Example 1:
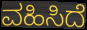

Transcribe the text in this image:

ವಹಿಸಿದೆ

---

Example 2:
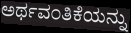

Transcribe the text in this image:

ಅರ್ಥವಂತಿಕೆಯನ್ನು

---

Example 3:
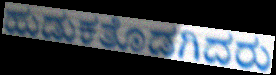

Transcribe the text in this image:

ಹುಡುಕತೊಡಗಿದರು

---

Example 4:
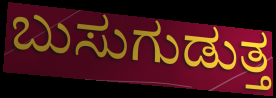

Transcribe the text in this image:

ಬುಸುಗುಡುತ್ತ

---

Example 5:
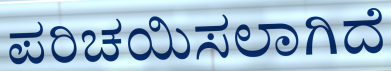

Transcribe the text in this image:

ಪರಿಚಯಿಸಲಾಗಿದೆ